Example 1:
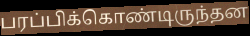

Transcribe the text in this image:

பரப்பிக்கொண்டிருந்தன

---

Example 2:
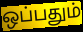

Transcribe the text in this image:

ஒப்பதும்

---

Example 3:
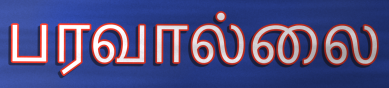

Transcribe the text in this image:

பரவால்லை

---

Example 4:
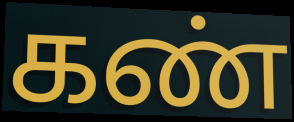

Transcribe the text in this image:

கண்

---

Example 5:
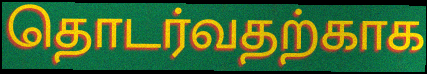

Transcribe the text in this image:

தொடர்வதற்காக